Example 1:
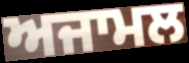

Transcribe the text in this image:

ਅਜਾਮਲ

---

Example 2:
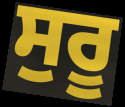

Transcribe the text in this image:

ਸੁਰੂ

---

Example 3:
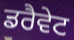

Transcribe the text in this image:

ਡਰੈਵੇਟ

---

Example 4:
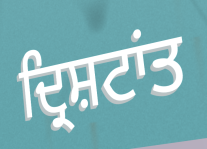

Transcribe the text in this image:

ਦ੍ਰਿਸ਼ਟਾਂਤ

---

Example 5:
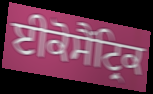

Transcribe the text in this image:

ਈਕੋਸੈਂਟ੍ਰਿਕ